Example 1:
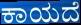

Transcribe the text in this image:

ಕಾಯದೆ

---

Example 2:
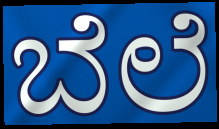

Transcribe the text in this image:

ಬೆಲೆ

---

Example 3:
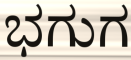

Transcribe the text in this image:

ಭಗುಗ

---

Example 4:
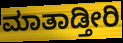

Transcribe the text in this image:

ಮಾತಾಡ್ತೀರಿ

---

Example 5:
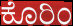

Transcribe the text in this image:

ಕೊರಿಂ